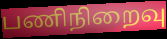
பணிநிறைவு